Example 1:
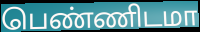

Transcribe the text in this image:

பெண்ணிடமா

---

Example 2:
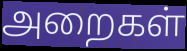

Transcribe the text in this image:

அறைகள்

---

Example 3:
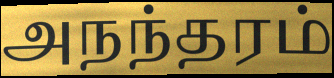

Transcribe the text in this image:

அநந்தரம்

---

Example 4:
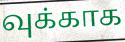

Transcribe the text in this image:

வுக்காக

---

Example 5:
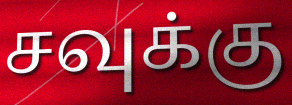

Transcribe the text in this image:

சவுக்கு